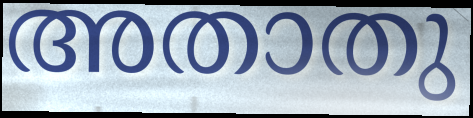
അതാതു